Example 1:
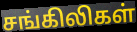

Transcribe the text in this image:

சங்கிலிகள்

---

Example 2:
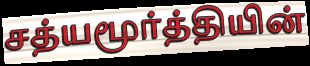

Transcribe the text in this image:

சத்யமூர்த்தியின்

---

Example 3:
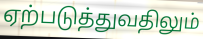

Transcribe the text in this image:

ஏற்படுத்துவதிலும்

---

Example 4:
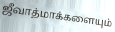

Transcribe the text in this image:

ஜீவாத்மாக்களையும்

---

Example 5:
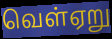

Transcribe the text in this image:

வெள்ஏறு